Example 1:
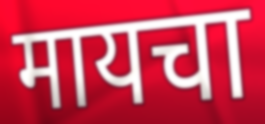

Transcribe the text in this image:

मायचा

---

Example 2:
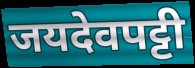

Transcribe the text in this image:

जयदेवपट्टी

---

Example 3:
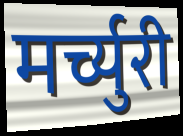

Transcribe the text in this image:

मर्च्युरी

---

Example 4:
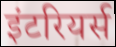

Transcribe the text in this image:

इंटरियर्स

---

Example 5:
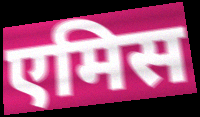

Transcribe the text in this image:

एमिस